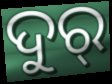
ଦୁର୍